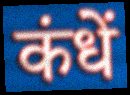
कंधें